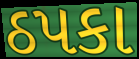
ઠપકા